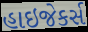
હાઇજેકર્સ